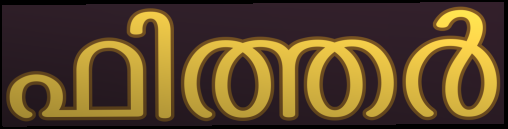
ഫിത്തർ